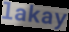
lakay